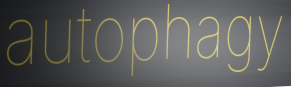
autophagy